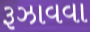
રૂઝાવવા